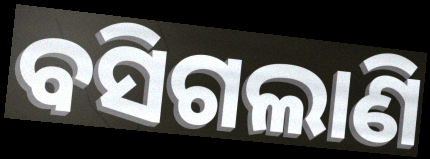
ବସିଗଲାଣି